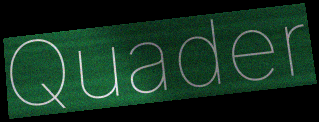
Quader